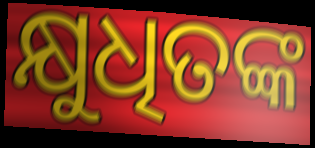
କ୍ଷୁଧିତଙ୍କ